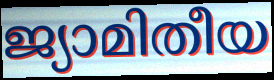
ജ്യാമിതീയ